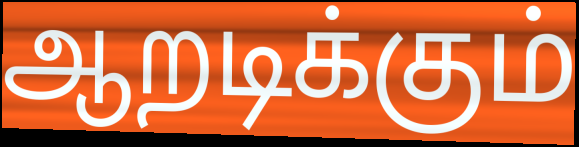
ஆறடிக்கும்